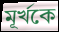
মূর্খকে